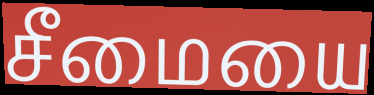
சீமையை